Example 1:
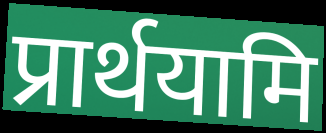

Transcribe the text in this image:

प्रार्थयामि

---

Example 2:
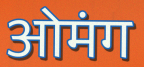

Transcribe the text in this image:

ओमंग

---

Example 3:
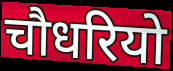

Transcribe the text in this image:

चौधरियो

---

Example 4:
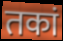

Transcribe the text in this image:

तकां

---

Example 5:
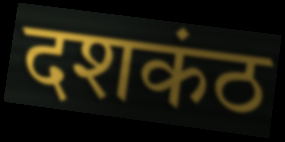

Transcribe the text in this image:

दशकंठ